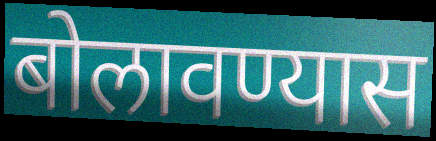
बोलावण्यास